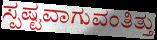
ಸ್ಪಷ್ಟವಾಗುವಂತಿತ್ತು